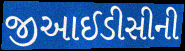
જીઆઈડીસીની